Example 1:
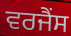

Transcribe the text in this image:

ਵਰਜੈਂਸ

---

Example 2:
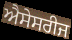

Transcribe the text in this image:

ਐਸੇਸਰੀਜ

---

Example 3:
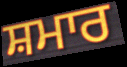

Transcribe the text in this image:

ਸ਼ਮਾਰ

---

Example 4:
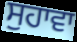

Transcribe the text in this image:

ਸੁਹਾਵਾ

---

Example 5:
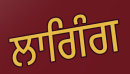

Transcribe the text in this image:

ਲਾਗਿੰਗ